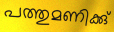
പത്തുമണിക്കു്